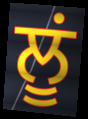
ਲੂਂ